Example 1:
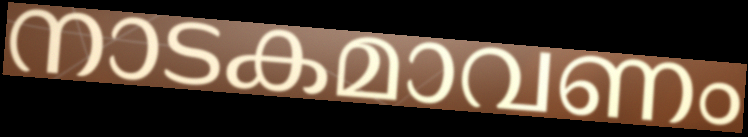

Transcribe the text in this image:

നാടകമാവണം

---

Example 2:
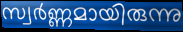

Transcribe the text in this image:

സ്വർണ്ണമായിരുന്നു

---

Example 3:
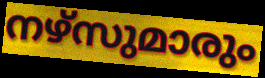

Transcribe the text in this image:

നഴ്സുമാരും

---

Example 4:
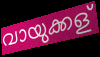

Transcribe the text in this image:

വായുക്കള്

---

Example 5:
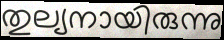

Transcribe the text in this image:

തുല്യനായിരുന്നു